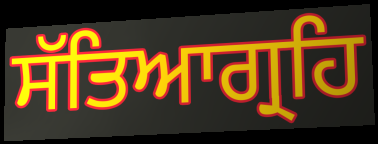
ਸੱਤਿਆਗ੍ਰਹਿ